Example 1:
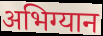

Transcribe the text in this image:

अभिग्यान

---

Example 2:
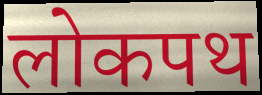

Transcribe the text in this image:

लोकपथ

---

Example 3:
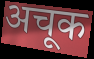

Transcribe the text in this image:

अचूक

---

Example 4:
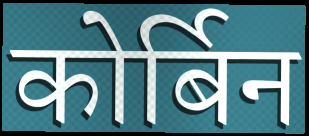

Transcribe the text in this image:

कोर्बिन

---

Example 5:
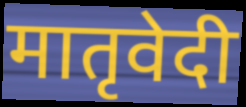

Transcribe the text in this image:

मातृवेदी